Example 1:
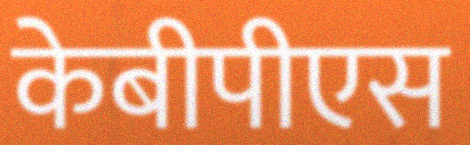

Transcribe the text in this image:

केबीपीएस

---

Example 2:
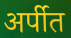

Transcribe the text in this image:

अर्पीत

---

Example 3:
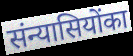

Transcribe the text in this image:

संन्यासियोंका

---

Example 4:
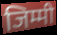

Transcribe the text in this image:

जिम्मी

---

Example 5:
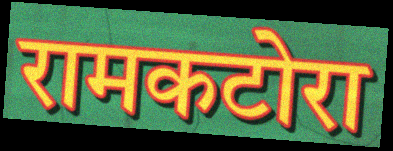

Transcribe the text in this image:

रामकटोरा